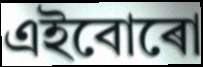
এইবোৰো